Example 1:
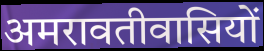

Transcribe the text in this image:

अमरावतीवासियों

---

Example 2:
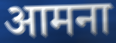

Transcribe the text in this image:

आमना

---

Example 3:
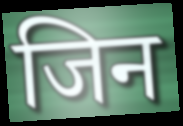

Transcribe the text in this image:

जिन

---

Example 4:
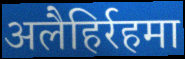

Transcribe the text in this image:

अलैहिर्रहमा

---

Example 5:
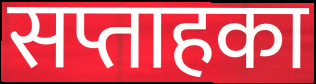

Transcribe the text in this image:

सप्ताहका